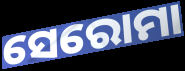
ସେରୋମା